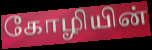
கோழியின்